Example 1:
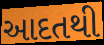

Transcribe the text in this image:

આદતથી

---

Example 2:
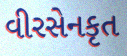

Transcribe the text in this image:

વીરસેનકૃત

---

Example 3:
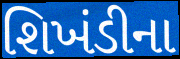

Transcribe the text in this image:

શિખંડીના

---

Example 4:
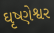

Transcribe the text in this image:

ઘૃષ્ણેશ્વર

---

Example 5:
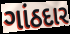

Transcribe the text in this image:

ગાંઠદાર